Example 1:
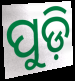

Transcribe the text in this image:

ପୁଡ଼ି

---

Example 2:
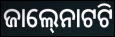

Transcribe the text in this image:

ଜାଲ୍‍ନୋଟଟି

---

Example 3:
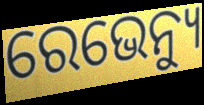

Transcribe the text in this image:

ରେଭେନ୍ୟୁ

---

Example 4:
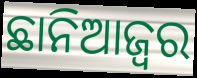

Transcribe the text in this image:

ଛାନିଆଜ୍ୱର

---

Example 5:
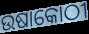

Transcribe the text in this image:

ଉଷାକୋଠୀ